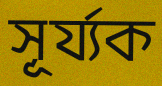
সূৰ্য্যক